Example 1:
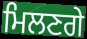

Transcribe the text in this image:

ਮਿਲਣਗੇ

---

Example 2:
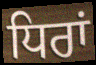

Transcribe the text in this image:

ਧਿਰਾਂ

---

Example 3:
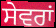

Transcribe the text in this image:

ਸੇਵਰਾਂ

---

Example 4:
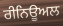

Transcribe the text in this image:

ਰੀਨਿਊਅਲ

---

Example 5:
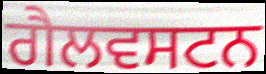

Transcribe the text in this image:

ਗੈਲਵਸਟਨ